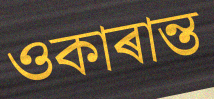
ওকাৰান্ত